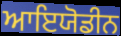
ਆਇਯੋਡੀਨ